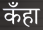
कँहा